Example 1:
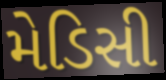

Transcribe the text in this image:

મેડિસી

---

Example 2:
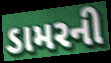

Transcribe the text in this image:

ડામરની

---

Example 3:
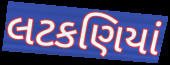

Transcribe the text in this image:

લટકણિયાં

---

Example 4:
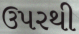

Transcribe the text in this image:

ઉપરથી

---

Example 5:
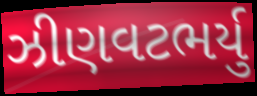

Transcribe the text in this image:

ઝીણવટભર્યુ